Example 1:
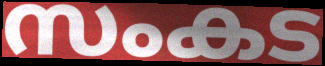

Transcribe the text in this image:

സംകട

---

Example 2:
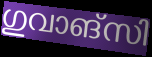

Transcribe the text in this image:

ഗുവാങ്സി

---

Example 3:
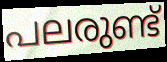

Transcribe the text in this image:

പലരുണ്ട്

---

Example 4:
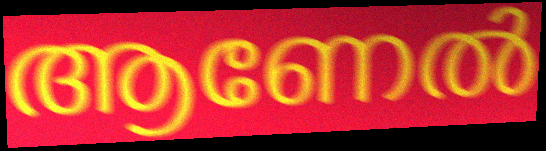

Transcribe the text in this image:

ആണേൽ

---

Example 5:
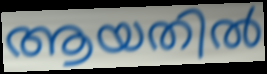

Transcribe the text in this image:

ആയതിൽ